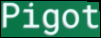
Pigot